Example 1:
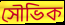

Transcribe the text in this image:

সৌভিক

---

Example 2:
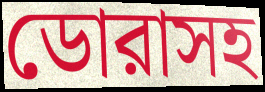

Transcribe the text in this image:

ডোরাসহ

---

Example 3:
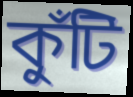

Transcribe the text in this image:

কুঁটি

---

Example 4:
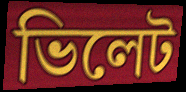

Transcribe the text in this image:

ভিলেট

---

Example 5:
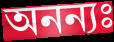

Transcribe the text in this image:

অনন্যঃ